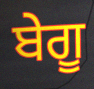
ਬੇਗੂ